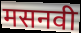
मसनवी